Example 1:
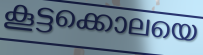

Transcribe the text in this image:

കൂട്ടക്കൊലയെ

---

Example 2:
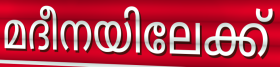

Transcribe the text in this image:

മദീനയിലേക്ക്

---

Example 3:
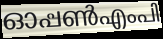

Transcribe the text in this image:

ഓപ്പൺഎംപി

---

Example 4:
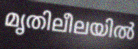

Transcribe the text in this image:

മൃതിലീലയിൽ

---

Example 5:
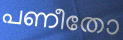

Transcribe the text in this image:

പണീതോ